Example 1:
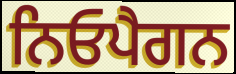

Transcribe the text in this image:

ਨਿਓਪੈਗਨ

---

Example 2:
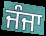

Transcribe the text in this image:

ਜੰਜਾ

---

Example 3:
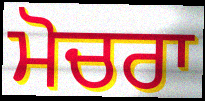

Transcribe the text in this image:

ਮੋਚਰਾ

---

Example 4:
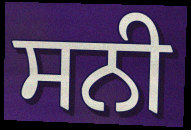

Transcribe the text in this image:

ਸਨੀ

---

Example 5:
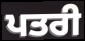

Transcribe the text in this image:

ਪਤਰੀ